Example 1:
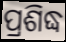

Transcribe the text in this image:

ପ୍ରଶିଦ୍ଧ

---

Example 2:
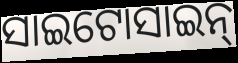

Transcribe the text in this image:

ସାଇଟୋସାଇନ୍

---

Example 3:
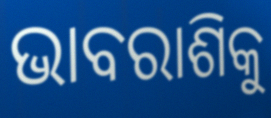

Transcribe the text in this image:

ଭାବରାଶିକୁ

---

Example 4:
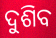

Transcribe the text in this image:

ଦୁଶିବ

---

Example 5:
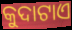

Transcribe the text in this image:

କୁଦାଟାଏ